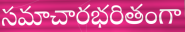
సమాచారభరితంగా